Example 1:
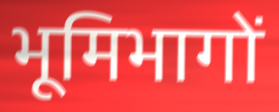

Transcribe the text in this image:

भूमिभागों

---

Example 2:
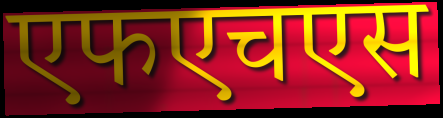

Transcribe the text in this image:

एफएचएस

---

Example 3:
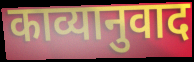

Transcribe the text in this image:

काव्यानुवाद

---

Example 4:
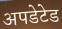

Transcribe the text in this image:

अपडेटेड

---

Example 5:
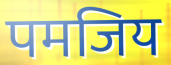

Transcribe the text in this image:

पमजिय